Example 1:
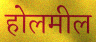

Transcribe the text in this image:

होलमील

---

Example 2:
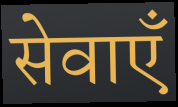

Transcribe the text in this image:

सेवाएँ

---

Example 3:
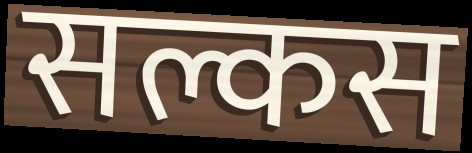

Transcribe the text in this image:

सल्कस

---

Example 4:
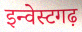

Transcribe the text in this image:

इन्वेस्टगढ़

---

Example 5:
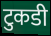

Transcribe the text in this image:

टुकडी